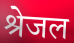
श्रेजल